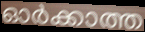
ഓർക്കാത്ത